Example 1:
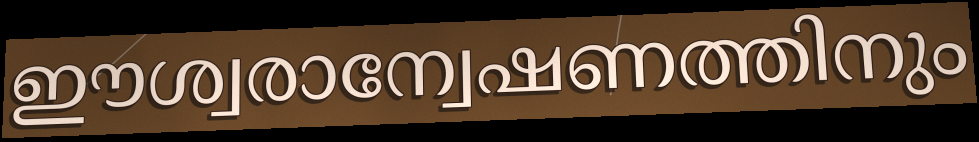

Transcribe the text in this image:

ഈശ്വരാന്വേഷണത്തിനും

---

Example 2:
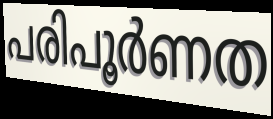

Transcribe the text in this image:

പരിപൂർണത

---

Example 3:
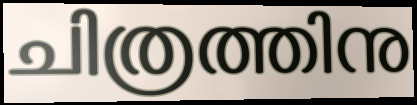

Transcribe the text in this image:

ചിത്രത്തിനു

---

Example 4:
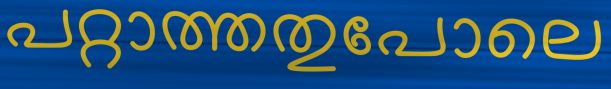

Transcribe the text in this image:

പറ്റാത്തതുപോലെ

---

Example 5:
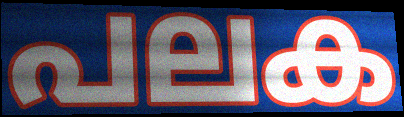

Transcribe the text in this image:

പലക